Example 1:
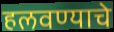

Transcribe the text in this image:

हलवण्याचे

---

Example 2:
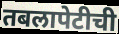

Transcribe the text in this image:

तबलापेटीची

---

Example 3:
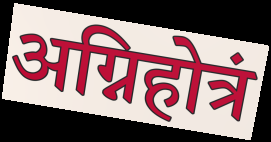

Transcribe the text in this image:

अग्निहोत्रं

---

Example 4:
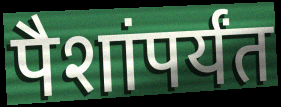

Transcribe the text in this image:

पैशांपर्यंत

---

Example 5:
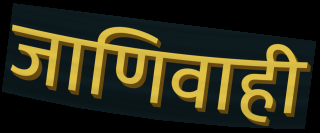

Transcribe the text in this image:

जाणिवाही